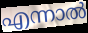
എന്നാൽ